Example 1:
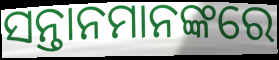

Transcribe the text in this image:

ସନ୍ତାନମାନଙ୍କରେ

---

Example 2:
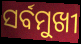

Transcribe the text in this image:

ସର୍ବମୁଖୀ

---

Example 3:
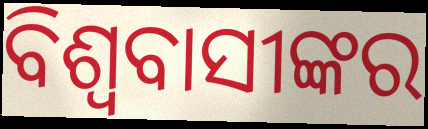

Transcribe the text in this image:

ବିଶ୍ୱବାସୀଙ୍କର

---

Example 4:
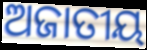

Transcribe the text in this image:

ଅଜାତୀୟ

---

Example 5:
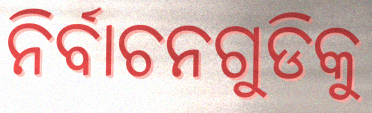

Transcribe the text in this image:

ନିର୍ବାଚନଗୁଡିକୁ